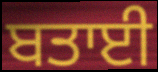
ਬਤਾਈ